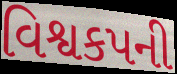
વિશ્વકપની